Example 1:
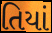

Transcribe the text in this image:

તિયાં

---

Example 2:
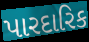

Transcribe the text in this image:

પારદારિક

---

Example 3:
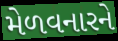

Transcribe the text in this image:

મેળવનારને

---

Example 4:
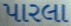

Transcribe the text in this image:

પારલા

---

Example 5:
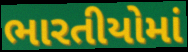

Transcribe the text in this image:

ભારતીયોમાં